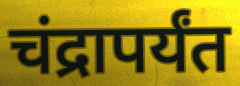
चंद्रापर्यंत